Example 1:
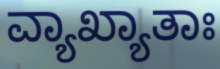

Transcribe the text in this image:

ವ್ಯಾಖ್ಯಾತಾಃ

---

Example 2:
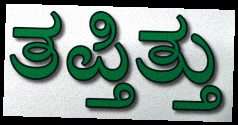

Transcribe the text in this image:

ತಪ್ತಿತ್ತು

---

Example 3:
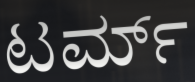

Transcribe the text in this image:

ಟರ್ಮ್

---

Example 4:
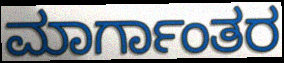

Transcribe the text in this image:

ಮಾರ್ಗಾಂತರ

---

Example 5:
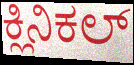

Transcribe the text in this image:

ಕ್ಲಿನಿಕಲ್